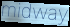
midway